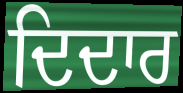
ਦਿਦਾਰ